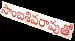
సాంబశివరావుతో